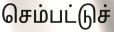
செம்பட்டுச்